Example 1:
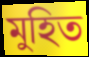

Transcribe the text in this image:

মুহিত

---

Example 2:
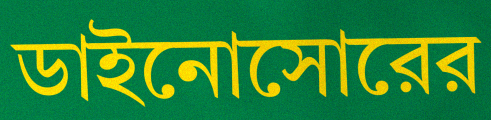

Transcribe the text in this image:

ডাইনোসোরের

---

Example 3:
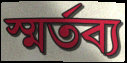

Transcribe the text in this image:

স্মর্তব্য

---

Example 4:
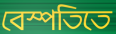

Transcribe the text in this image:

বেস্পতিতে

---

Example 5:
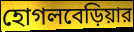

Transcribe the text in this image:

হোগলবেড়িয়ার